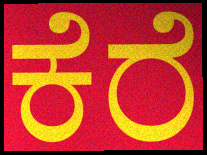
ಕೆರೆ